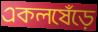
একলষেঁড়ে